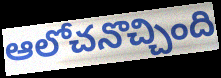
ఆలోచనొచ్చింది